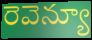
రెవెన్యూ